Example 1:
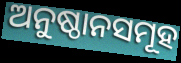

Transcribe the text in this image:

ଅନୁଷ୍ଠାନସମୂହ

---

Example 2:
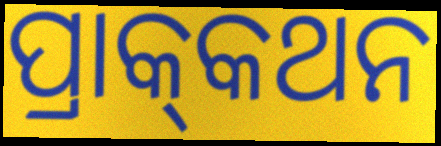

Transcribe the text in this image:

ପ୍ରାକ୍‍କଥନ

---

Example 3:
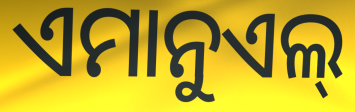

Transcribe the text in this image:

ଏମାନୁଏଲ୍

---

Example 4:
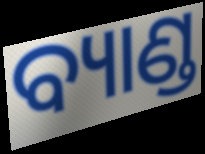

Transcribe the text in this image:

ବ୍ୟାଣ୍ଡ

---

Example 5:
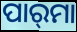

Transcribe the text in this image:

ପାର୍‌ମା